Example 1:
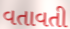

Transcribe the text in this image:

વતાવતી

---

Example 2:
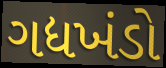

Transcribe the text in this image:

ગદ્યખંડો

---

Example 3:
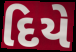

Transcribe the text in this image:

દિયે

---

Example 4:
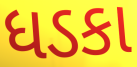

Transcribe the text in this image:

ધડકા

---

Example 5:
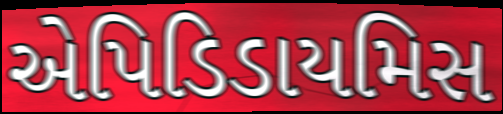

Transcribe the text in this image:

એપિડિડાયમિસ